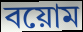
বয়োম